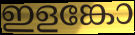
ഇളങ്കോ